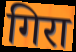
गिरा